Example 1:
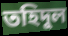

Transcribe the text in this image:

তহিদুল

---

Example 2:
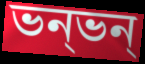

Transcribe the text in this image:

ভন্ভন্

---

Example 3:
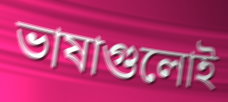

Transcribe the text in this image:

ভাষাগুলোই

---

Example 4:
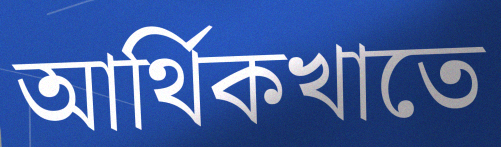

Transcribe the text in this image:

আর্থিকখাতে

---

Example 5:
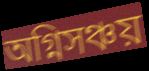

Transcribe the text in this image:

অগ্নিসঞ্চয়